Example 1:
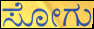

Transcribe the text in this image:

ಸೋಗು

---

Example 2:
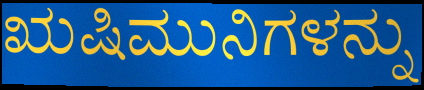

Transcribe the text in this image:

ಋಷಿಮುನಿಗಳನ್ನು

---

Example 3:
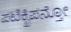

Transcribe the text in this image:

ಪಟಿಕ್ಖಿಪನ್ತೋ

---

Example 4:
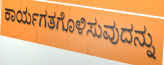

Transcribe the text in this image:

ಕಾರ್ಯಗತಗೊಳಿಸುವುದನ್ನು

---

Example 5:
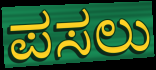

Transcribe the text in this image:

ಪಸಲು